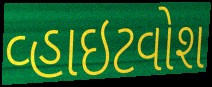
વ્હાઇટવોશ